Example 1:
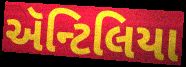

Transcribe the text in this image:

ઍન્ટિલિયા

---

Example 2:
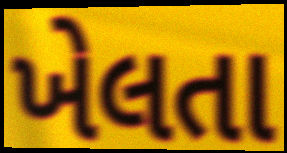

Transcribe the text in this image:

ખેલતા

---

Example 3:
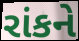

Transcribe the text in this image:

રાંકને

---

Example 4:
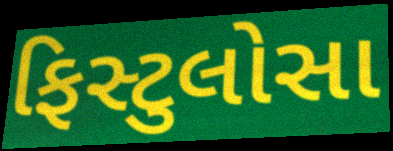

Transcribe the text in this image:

ફિસ્ટુલોસા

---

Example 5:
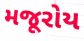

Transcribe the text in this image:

મજૂરોય